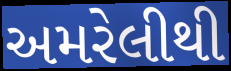
અમરેલીથી